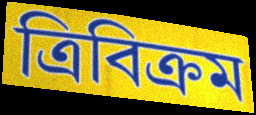
ত্রিবিক্রম